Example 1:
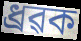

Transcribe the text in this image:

ধ্ৰৱক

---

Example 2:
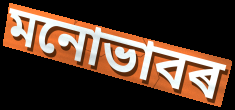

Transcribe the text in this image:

মনোভাবৰ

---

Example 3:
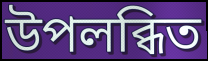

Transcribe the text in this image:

উপলব্ধিত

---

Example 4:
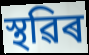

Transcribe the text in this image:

স্থৱিৰ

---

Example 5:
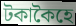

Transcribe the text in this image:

টকাকৈহে